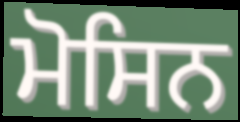
ਮੋਸਿਨ